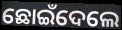
ଛୋଇଁଦେଲେ